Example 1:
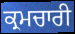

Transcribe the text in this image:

ਕ੍ਰਮਚਾਰੀ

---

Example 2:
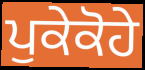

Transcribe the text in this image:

ਪੁਕੇਕੋਹੇ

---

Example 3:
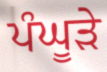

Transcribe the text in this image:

ਪੰਘੂੜੇ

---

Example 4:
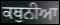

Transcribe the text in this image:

ਕਥੁਨੀਆ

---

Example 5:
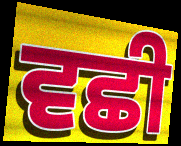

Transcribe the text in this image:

ਵਛੀ